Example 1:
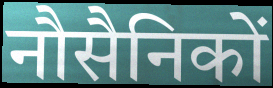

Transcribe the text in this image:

नौसैनिकों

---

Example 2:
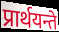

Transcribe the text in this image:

प्रार्थयन्ते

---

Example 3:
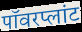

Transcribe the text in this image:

पॉवरप्लांट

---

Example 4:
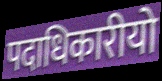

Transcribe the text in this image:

पदाधिकारीयो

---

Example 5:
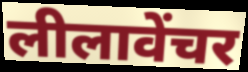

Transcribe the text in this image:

लीलावेंचर